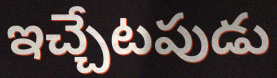
ఇచ్చేటపుడు